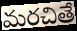
మరచితే